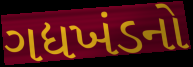
ગદ્યખંડનો